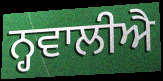
ਨ੍ਹਵਾਲੀਐ